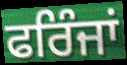
ਫਰਿੰਜਾਂ